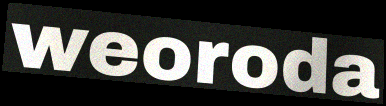
weoroda